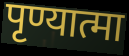
पृण्यात्मा